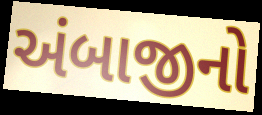
અંબાજીનો